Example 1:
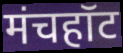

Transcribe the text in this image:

मंचहॉट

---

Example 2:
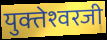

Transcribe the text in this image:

युक्तेश्वरजी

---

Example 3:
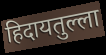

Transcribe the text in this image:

हिदायतुल्ला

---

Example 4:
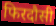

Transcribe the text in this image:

फिरदौसी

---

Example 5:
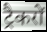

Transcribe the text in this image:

ट्रैकरों